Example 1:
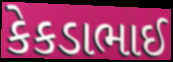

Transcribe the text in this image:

કેકડાભાઈ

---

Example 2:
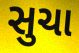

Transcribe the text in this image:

સુચા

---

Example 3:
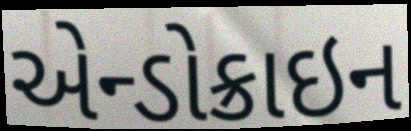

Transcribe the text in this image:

એન્ડોક્રાઇન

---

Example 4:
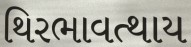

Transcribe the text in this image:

થિરભાવત્થાય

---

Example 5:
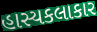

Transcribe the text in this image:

હાસ્યકલાકાર